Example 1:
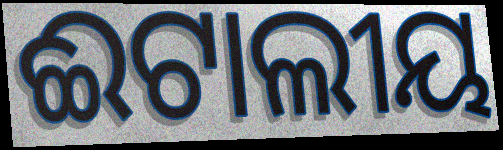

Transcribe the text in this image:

ଈଟାଲୀୟ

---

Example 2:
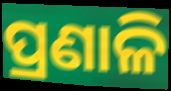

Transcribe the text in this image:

ପ୍ରଣାଳି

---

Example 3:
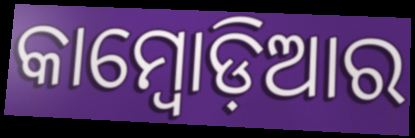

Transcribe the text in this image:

କାମ୍ବୋଡ଼ିଆର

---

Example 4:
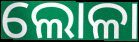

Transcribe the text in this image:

ଲୋଳା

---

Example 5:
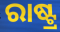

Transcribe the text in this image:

ରାଷ୍ଟ୍ର